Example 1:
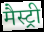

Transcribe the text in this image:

मैस्ट्री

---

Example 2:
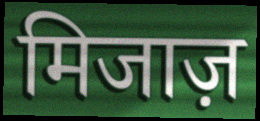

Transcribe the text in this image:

मिजाज़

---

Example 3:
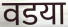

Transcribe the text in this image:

वडया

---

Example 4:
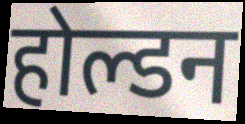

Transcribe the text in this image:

होल्डन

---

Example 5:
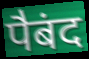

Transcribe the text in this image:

पैबंद